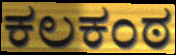
ಕಲಕಂಠ